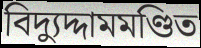
বিদ্যুদ্দামমণ্ডিত